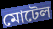
মোটেল